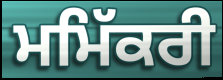
ਮਮਿੱਕਰੀ